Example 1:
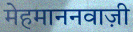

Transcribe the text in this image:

मेहमाननवाज़ी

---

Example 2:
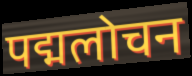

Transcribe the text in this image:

पद्मलोचन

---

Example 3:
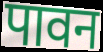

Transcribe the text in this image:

पावन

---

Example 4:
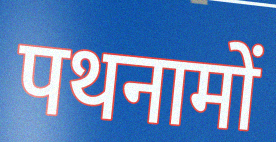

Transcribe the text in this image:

पथनामों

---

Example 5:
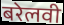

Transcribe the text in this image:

बरेलवी